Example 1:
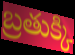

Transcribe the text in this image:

బ్రతుక్కి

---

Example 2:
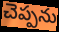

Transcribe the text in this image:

చెప్పను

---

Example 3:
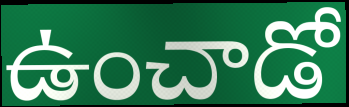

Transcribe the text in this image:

ఉంచాడో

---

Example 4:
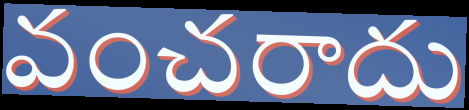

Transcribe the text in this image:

వంచరాదు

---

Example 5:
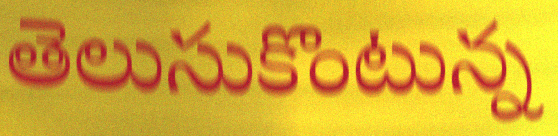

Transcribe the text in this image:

తెలుసుకొంటున్న